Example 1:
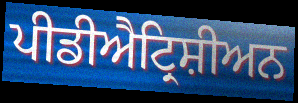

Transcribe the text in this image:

ਪੀਡੀਐਟ੍ਰਿਸ਼ੀਅਨ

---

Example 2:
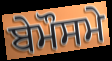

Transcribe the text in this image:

ਬੇਮੌਸਮੇ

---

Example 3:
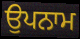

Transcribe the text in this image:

ਉਪਨਾਮ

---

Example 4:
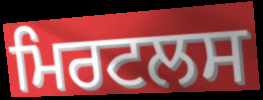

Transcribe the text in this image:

ਮਿਰਟਲਸ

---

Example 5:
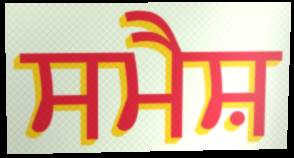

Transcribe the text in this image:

ਸਮੈਸ਼